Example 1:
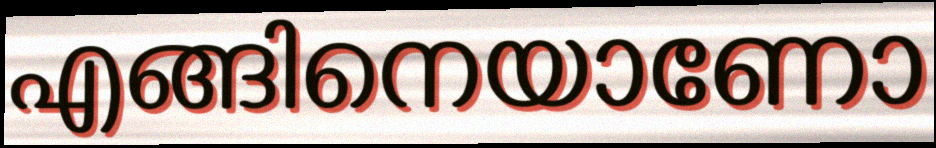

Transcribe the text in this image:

എങ്ങിനെയാണോ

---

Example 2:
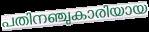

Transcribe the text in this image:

പതിനഞ്ചുകാരിയായ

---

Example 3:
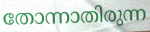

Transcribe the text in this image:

തോന്നാതിരുന്ന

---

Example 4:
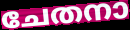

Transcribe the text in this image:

ചേതനാ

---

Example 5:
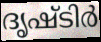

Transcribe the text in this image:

ദൃഷ്ടിർ